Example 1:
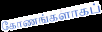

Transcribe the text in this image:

கோணங்களாகப்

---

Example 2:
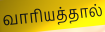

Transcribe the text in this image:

வாரியத்தால்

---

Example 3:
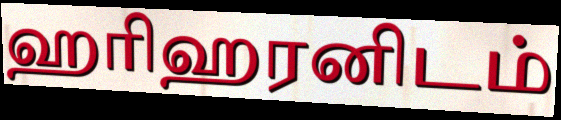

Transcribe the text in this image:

ஹரிஹரனிடம்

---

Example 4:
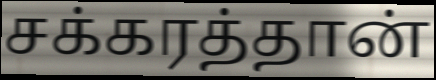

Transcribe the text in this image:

சக்கரத்தான்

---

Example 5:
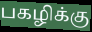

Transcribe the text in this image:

பகழிக்கு